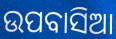
ଉପବାସିଆ